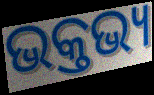
ଭକ୍ତଭ୍ୟ